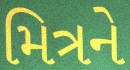
મિત્રને